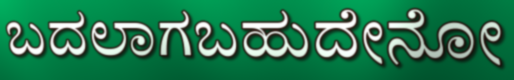
ಬದಲಾಗಬಹುದೇನೋ